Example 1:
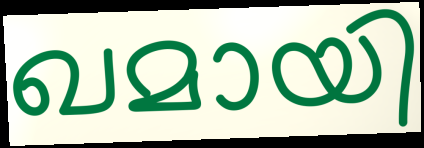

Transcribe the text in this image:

ഖമായി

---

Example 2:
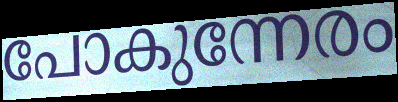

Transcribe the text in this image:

പോകുന്നേരം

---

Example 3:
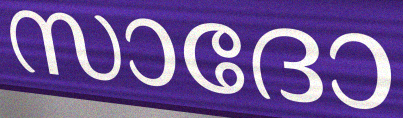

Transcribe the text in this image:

സാദോ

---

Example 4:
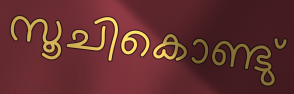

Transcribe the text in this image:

സൂചികൊണ്ടു്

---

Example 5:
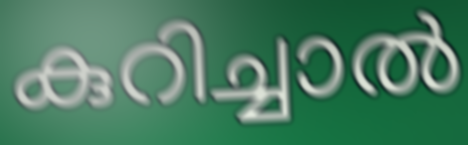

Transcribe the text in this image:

കുറിച്ചാൽ